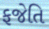
ફજેતિ